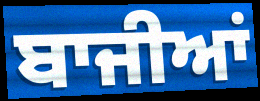
ਬਾਜੀਆਂ